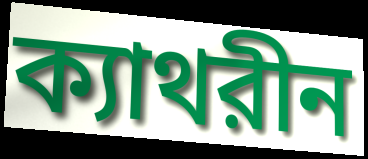
ক্যাথরীন